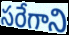
సరేగాని